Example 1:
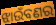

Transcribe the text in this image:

ଝାଉଁବଣର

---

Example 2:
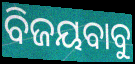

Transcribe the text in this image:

ବିଜୟବାବୁ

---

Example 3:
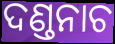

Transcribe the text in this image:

ଦଣ୍ଡନାଚ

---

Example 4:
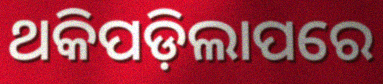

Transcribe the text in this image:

ଥକିପଡ଼ିଲାପରେ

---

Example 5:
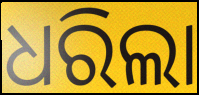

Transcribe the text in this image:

ଧରିଲା